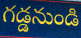
గడ్డనుండి